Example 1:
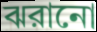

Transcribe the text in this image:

ঝরানো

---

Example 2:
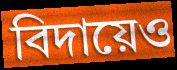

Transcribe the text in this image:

বিদায়েও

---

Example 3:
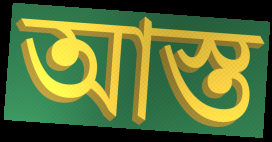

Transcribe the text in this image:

আস্ত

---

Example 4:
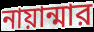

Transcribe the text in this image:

নায়ান্মার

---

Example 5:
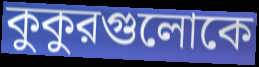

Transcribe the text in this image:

কুকুরগুলোকে